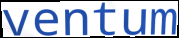
ventum